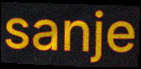
sanje